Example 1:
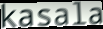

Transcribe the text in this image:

kasala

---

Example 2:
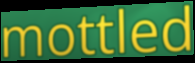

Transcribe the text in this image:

mottled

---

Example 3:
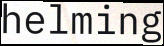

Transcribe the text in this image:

helming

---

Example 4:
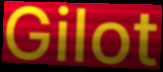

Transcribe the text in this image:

Gilot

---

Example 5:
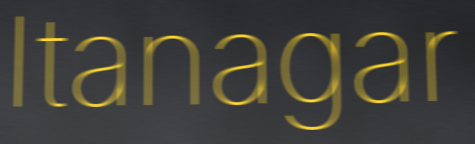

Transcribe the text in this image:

Itanagar